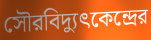
সৌরবিদ্যুৎকেন্দ্রের